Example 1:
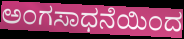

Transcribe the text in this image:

ಅಂಗಸಾಧನೆಯಿಂದ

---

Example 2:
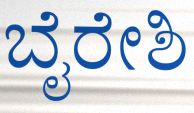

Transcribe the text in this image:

ಬೈರೇಶಿ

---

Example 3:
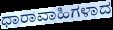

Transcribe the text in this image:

ಧಾರಾವಾಹಿಗಳಾದ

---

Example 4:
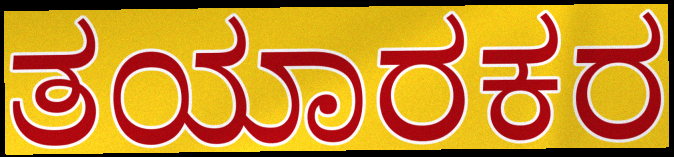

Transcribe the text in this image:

ತಯಾರಕರ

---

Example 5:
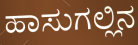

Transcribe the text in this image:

ಹಾಸುಗಲ್ಲಿನ